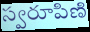
స్వరూపిణి